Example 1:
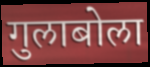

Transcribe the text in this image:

गुलाबोला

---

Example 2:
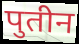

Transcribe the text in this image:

पुतीन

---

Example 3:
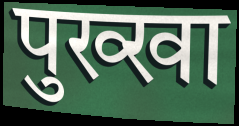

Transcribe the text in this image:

पुख्खा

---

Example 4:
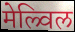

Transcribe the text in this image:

मेल्विल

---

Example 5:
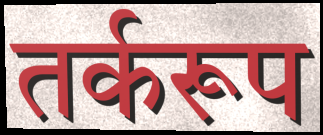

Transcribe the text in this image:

तर्करूप